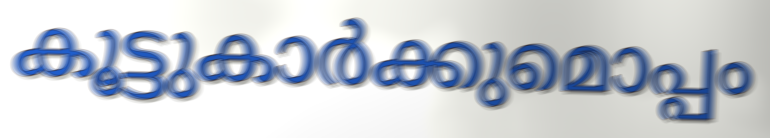
കൂട്ടുകാർക്കുമൊപ്പം